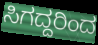
ಸಿಗದ್ದರಿಂದ